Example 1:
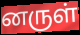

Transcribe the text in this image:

னருள்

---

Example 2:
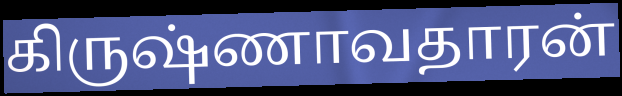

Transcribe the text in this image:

கிருஷ்ணாவதாரன்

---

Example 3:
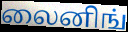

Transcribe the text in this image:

லைனிங்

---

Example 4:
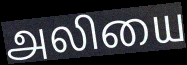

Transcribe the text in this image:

அலியை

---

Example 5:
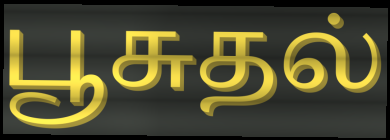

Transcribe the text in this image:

பூசுதல்